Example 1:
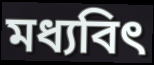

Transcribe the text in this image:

মধ্যবিৎ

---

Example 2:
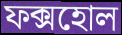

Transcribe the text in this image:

ফক্সহোল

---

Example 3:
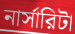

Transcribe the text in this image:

নার্সারিটা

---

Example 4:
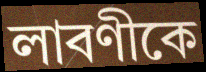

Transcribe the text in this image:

লাবণীকে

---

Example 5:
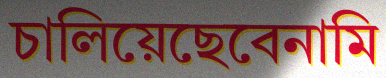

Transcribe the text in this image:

চালিয়েছেবেনামি